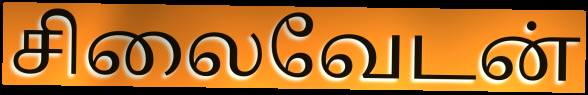
சிலைவேடன்